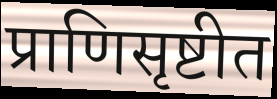
प्राणिसृष्टीत